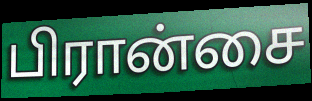
பிரான்சை